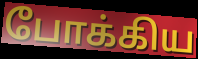
போக்கிய